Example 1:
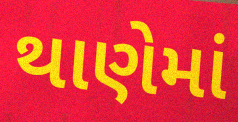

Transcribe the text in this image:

થાણેમાં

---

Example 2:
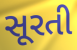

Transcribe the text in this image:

સૂરતી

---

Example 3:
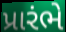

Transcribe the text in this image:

પ્રારંભે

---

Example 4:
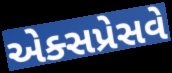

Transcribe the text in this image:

એક્સપ્રેસવે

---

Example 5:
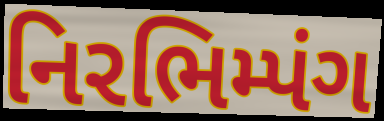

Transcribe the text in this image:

નિરભિમ્પંગ